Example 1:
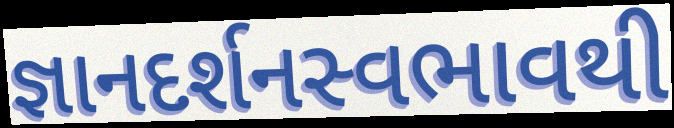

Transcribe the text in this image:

જ્ઞાનદર્શનસ્વભાવથી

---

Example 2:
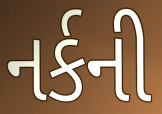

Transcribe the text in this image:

નર્કની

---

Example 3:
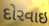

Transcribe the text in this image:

દોરવાઇ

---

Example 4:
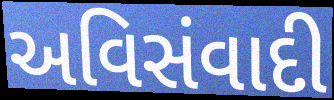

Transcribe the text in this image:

અવિસંવાદી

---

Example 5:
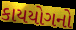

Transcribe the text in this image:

કાયયોગનો